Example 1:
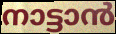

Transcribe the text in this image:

നാട്ടാൻ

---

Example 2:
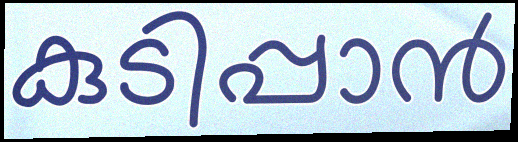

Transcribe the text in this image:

കുടിപ്പാൻ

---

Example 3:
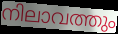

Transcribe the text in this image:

നിലാവത്തും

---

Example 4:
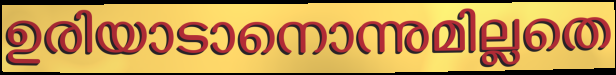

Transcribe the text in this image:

ഉരിയാടാനൊന്നുമില്ലതെ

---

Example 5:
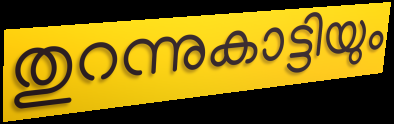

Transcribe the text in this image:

തുറന്നുകാട്ടിയും